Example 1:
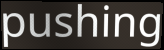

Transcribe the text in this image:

pushing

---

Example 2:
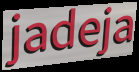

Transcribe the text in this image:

jadeja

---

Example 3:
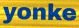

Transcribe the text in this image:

yonke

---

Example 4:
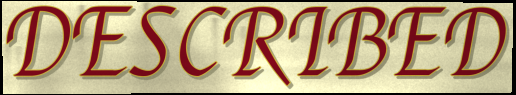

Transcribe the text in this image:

DESCRIBED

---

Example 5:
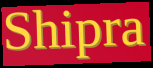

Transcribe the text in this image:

Shipra